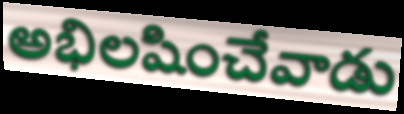
అభిలషించేవాడు